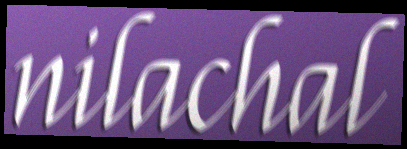
nilachal